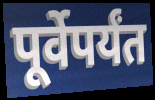
पूर्वेपर्यंत